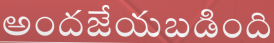
అందజేయబడింది